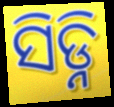
ସିଡ୍ନି